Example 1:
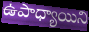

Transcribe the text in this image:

ఉపాధ్యాయిని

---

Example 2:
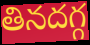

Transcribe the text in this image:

తినదగ్గ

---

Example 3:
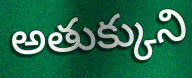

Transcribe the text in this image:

అతుక్కుని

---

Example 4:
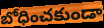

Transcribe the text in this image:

బోధించకుండా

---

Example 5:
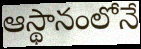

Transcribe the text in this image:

ఆస్థానంలోనే